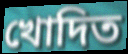
খোদিত